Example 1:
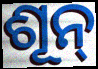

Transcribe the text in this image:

ଶୂନ୍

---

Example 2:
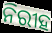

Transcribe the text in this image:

ନିରୀହ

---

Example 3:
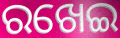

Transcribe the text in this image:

ରଖେଇ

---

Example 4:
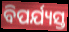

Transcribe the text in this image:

ବିପର୍ଯ୍ୟସ୍ତ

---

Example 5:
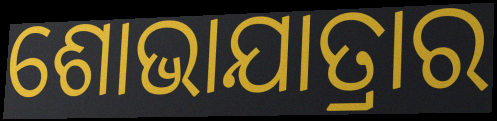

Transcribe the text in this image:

ଶୋଭାଯାତ୍ରାର